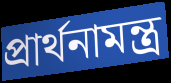
প্রার্থনামন্ত্র